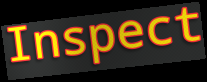
Inspect